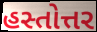
હસ્તોત્તર